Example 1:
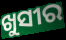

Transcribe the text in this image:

ଖୁସୀର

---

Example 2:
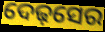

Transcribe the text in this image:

ଦେଢ଼ସେର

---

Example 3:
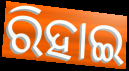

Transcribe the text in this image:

ରିହାଇ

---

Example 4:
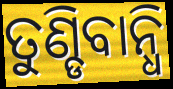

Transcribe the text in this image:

ତୁଣ୍ଡିବାନ୍ଧି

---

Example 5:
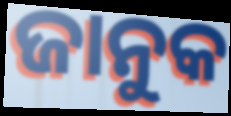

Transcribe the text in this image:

ଜାନୁକ